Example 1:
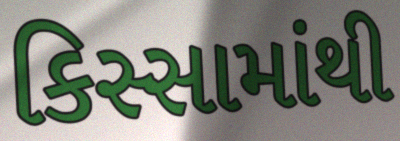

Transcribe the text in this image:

કિસ્સામાંથી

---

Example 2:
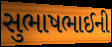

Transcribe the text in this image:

સુભાષભાઈની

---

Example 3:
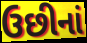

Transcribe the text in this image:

ઉછીનાં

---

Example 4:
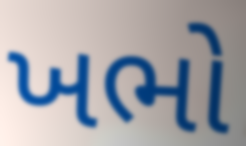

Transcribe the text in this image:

ખભો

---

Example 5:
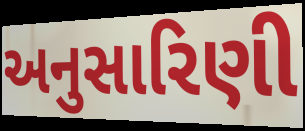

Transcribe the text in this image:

અનુસારિણી